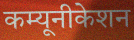
कम्यूनीकेशन